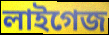
লাইগেজ